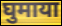
घुमाया